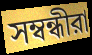
সম্বন্ধীরা